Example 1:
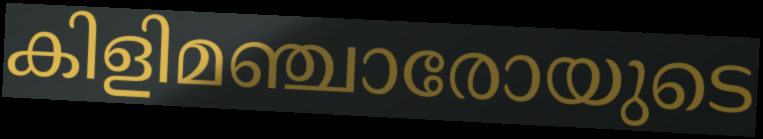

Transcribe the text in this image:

കിളിമഞ്ചാരോയുടെ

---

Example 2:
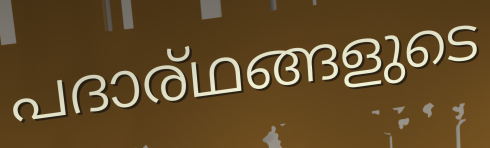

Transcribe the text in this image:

പദാര്ഥങ്ങളുടെ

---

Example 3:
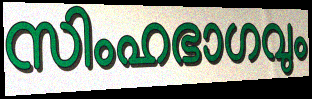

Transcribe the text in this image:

സിംഹഭാഗവും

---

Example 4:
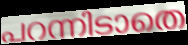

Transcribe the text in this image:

പറന്നിടാതെ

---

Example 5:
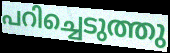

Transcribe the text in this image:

പറിച്ചെടുത്തു